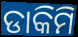
ଡାକିମି